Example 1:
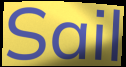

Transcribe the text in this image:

Sail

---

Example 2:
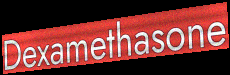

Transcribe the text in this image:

Dexamethasone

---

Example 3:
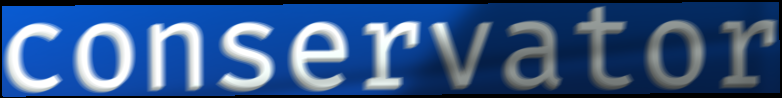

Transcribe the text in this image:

conservator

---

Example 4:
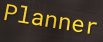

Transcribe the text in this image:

Planner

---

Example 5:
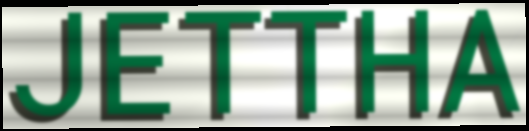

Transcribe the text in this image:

JETTHA